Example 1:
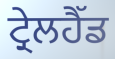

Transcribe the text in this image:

ਟ੍ਰੇਲਹੈੱਡ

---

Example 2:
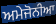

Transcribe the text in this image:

ਅਮੇਜੋਨੀਆ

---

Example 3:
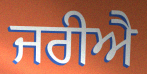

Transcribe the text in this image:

ਜਰੀਐ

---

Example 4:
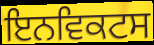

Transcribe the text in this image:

ਇਨਵਿਕਟਸ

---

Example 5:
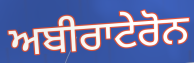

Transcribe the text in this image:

ਅਬੀਰਾਟੇਰੋਨ